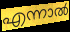
എന്നാൽ